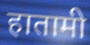
हातामी